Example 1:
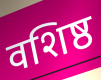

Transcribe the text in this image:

वशिष्ठ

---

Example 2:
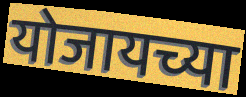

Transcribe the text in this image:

योजायच्या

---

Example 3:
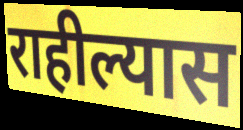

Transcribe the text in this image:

राहील्यास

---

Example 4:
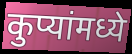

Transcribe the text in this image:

कुप्यांमध्ये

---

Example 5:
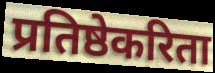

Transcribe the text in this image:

प्रतिष्ठेकरिता